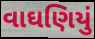
વાઘણિયું